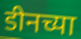
डीनच्या